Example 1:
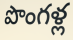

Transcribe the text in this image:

పొంగళ్ల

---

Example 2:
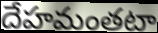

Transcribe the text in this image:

దేహమంతటా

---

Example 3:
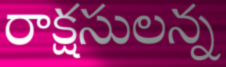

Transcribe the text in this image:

రాక్షసులన్న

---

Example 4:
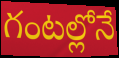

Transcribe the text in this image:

గంటల్లోనే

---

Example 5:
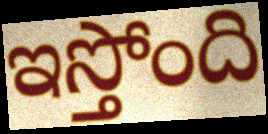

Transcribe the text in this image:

ఇస్తోంది